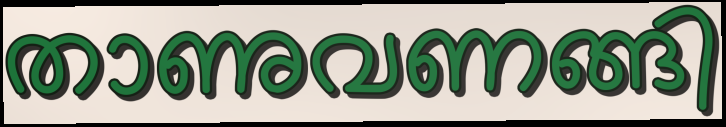
താണുവണങ്ങി